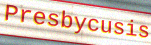
Presbycusis